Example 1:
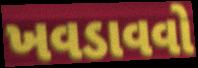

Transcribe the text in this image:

ખવડાવવો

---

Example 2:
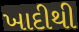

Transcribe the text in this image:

ખાદીથી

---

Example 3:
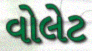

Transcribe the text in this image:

વોલેટ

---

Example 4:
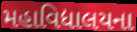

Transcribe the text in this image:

મહાવિદ્યાલયના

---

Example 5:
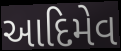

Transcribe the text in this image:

આદિમેવ